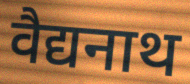
वैद्यनाथ